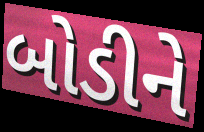
બોડીને